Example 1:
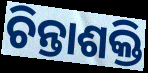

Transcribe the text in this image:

ଚିନ୍ତାଶକ୍ତି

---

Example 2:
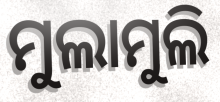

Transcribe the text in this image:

ମୁଲାମୁଲି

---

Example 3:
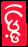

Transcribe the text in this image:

ଡ଼୍ଡି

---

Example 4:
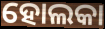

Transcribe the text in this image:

ହୋଲକା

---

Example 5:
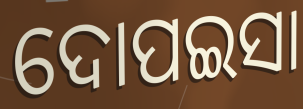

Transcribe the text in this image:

ଦୋପଇସା